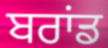
ਬਰਾਂਡ